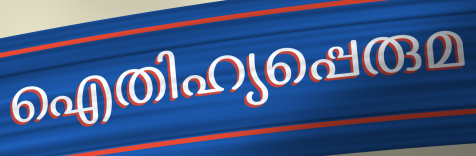
ഐതിഹ്യപ്പെരുമ